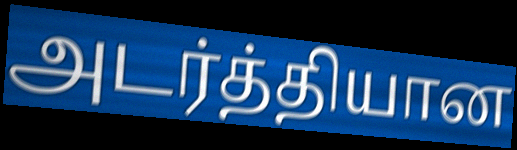
அடர்த்தியான